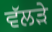
ਵੱਲੜੇ